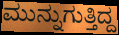
ಮುನ್ನುಗುತ್ತಿದ್ದ